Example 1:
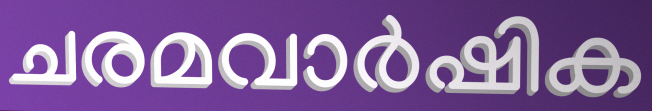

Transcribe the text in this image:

ചരമവാർഷിക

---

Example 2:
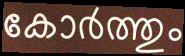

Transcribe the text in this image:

കോർത്തും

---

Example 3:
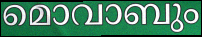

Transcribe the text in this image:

മൊവാബും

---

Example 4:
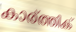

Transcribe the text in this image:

കാര്ത്തിക്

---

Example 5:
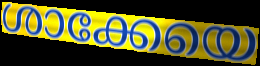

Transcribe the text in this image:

ശാക്കേയെ